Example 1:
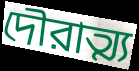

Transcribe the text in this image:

দৌরাত্ম্য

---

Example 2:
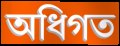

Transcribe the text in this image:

অধিগত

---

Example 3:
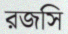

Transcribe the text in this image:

রজসি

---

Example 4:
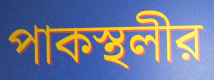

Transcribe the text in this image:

পাকস্থলীর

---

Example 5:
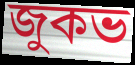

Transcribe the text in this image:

জুকভ